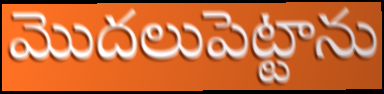
మొదలుపెట్టాను